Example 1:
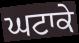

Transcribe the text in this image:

ਘਟਾਕੇ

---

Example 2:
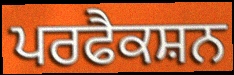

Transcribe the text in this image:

ਪਰਫੈਕਸ਼ਨ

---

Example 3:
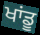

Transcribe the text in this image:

ਖਾਂਡੂ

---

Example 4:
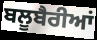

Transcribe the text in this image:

ਬਲੂਬੈਰੀਆਂ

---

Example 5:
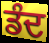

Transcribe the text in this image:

ਡੰਦ